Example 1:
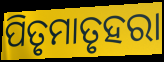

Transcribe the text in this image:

ପିତୃମାତୃହରା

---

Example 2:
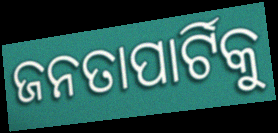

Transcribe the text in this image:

ଜନତାପାର୍ଟିକୁ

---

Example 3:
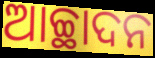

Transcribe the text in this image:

ଆଚ୍ଛାଦନ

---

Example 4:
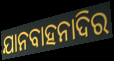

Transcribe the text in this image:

ଯାନବାହନାଦିର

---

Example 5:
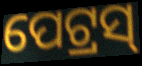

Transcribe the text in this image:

ପେଟ୍ରସ୍